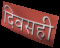
दिवसही